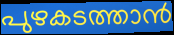
പുഴകടത്താൻ